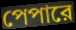
পেপারে